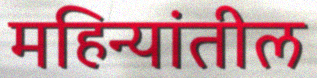
महिन्यांतील